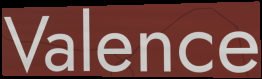
Valence